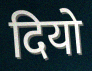
दियो